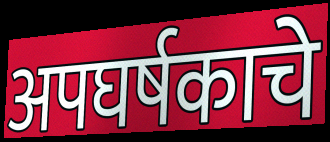
अपघर्षकाचे